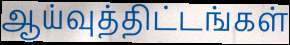
ஆய்வுத்திட்டங்கள்